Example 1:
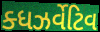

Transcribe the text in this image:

ક્ધઝર્વેટિવ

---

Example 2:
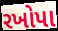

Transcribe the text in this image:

રખોપા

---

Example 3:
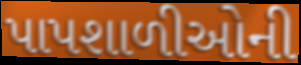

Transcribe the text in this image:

પાપશાળીઓની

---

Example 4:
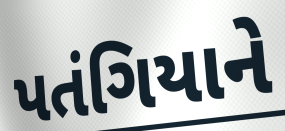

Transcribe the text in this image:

પતંગિયાને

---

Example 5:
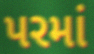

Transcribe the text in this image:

પરમાં